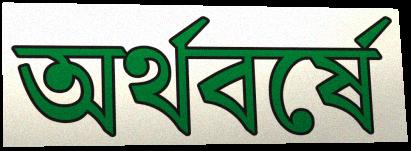
অর্থবর্ষে